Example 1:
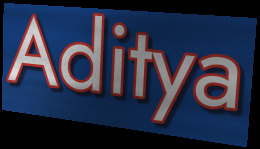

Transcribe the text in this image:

Aditya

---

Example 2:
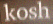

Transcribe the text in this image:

kosh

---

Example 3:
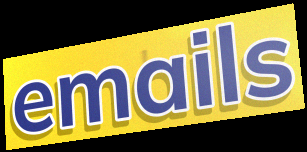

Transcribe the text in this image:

emails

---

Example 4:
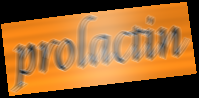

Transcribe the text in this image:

prolactin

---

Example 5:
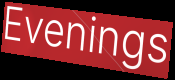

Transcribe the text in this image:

Evenings